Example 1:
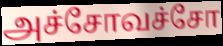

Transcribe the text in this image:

அச்சோவச்சோ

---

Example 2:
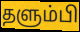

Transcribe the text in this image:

தளும்பி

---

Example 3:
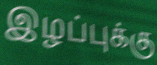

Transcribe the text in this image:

இழப்புக்கு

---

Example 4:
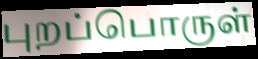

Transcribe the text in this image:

புறப்பொருள்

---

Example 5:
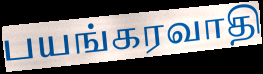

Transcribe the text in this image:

பயங்கரவாதி